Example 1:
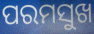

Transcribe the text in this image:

ପରମସୁଖ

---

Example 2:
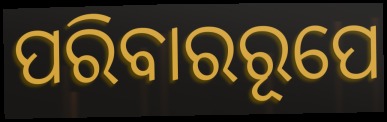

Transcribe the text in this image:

ପରିବାରରୂପେ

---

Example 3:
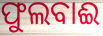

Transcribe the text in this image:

ଫୁଲବାଈ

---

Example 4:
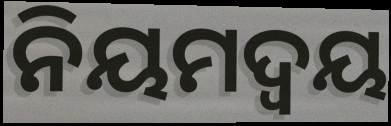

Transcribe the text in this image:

ନିୟମଦ୍ୱୟ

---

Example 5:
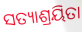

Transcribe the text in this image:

ସତ୍ୟାଶ୍ରୟିତା